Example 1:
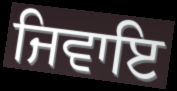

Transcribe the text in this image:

ਜਿਵਾਇ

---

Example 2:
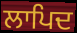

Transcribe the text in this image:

ਲਾਪਿਦ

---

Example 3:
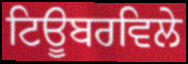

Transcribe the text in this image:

ਟਿਊਬਰਵਿਲੇ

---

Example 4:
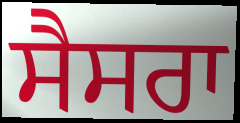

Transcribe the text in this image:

ਸੈਸਰਾ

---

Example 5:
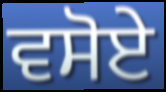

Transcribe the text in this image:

ਵਸੋਏ